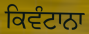
ਕਿਵੰਟਾਨਾ